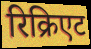
रिक्रिएट